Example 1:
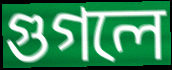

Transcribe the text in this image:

গুগলে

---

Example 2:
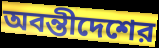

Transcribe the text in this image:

অবন্তীদেশের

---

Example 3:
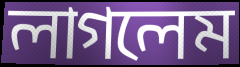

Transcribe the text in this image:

লাগলেম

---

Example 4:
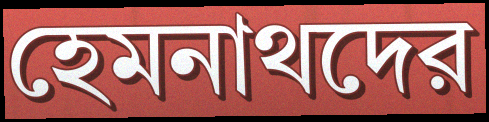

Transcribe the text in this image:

হেমনাথদের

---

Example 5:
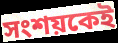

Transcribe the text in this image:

সংশয়কেই